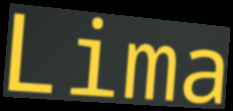
Lima